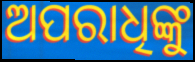
ଅପରାଧିଙ୍କୁ